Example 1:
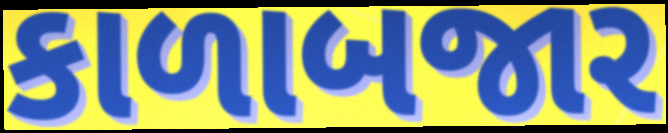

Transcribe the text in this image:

કાળાબજાર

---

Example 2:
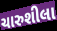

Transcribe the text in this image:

ચારુશીલા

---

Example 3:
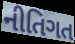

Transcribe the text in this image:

નીતિગત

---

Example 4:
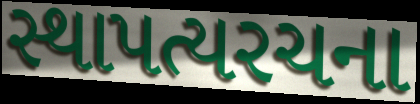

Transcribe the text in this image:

સ્થાપત્યરચના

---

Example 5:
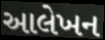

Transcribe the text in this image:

આલેખન